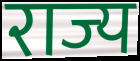
राज्‍य